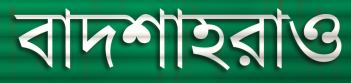
বাদশাহরাও